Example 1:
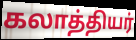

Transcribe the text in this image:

கலாத்தியர்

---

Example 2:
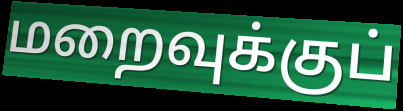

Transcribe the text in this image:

மறைவுக்குப்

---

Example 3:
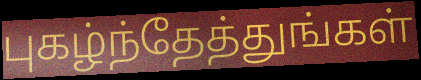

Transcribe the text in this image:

புகழ்ந்தேத்துங்கள்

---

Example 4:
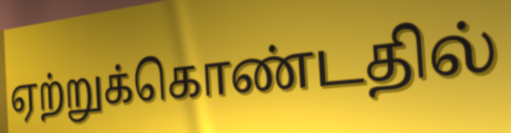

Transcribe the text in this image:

ஏற்றுக்கொண்டதில்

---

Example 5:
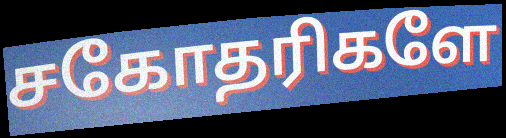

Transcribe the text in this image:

சகோதரிகளே